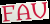
FAU